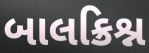
બાલક્રિશ્ન